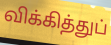
விக்கித்துப்